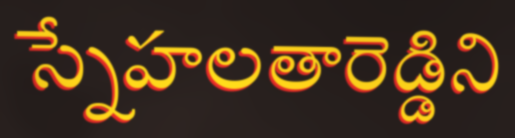
స్నేహలతారెడ్డిని